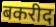
बकरीद